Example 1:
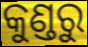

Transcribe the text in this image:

କୁଣ୍ଡରୁ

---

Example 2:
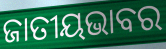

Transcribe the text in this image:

ଜାତୀୟଭାବର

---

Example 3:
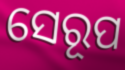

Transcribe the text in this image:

ସେରୂପ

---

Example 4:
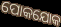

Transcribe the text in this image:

ପୋକଯୋକ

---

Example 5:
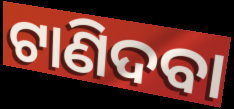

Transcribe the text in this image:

ଟାଣିଦବା